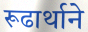
रूढार्थाने